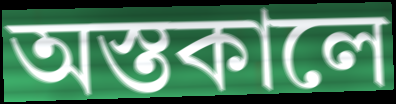
অস্তকালে